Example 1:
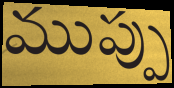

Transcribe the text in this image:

ముప్పు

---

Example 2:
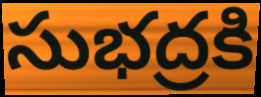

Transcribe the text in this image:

సుభద్రకి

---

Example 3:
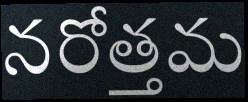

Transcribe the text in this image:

నరోత్తమ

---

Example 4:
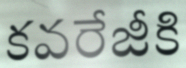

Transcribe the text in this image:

కవరేజీకి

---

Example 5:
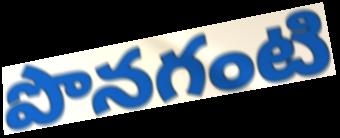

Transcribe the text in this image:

పొనగంటి